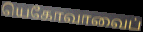
யெகோவாவைப்